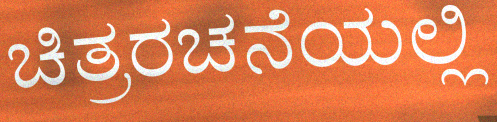
ಚಿತ್ರರಚನೆಯಲ್ಲಿ